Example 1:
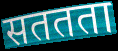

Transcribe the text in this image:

सततता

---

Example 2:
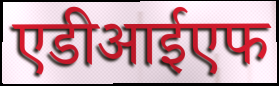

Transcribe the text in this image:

एडीआईएफ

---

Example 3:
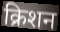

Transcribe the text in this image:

क्रिशन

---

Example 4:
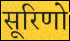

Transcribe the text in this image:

सूरिणो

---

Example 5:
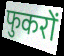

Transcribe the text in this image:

फुकरों